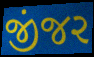
જીંજર